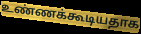
உண்ணக்கூடியதாக